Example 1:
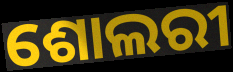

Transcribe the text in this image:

ଶୋଲରୀ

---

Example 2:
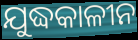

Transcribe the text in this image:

ଯୁଦ୍ଧକାଳୀନ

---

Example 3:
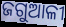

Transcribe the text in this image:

ଜଗୁଆଳୀ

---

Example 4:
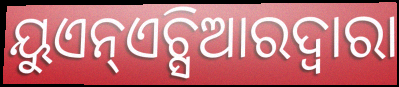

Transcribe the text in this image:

ୟୁଏନ୍ଏଚ୍ସିଆରଦ୍ୱାରା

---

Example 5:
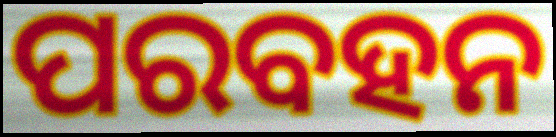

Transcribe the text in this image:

ପରବହନ